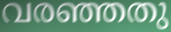
വരഞ്ഞതു